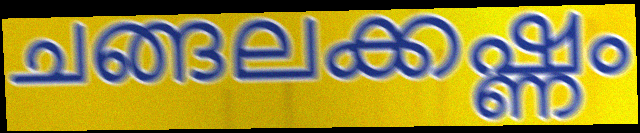
ചങ്ങലക്കഷ്ണം